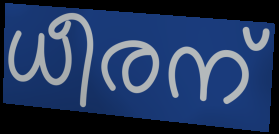
ധീരന്